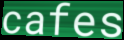
cafes